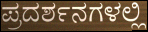
ಪ್ರದರ್ಶನಗಳಲ್ಲಿ